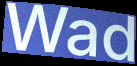
Wad